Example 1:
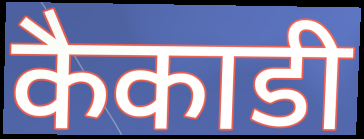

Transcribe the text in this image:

कैकाडी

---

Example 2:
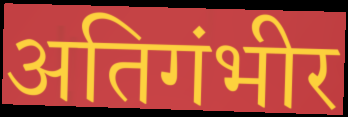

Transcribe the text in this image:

अतिगंभीर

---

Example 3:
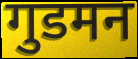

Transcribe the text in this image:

गुडमन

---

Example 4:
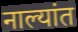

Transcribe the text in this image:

नाल्यांत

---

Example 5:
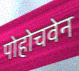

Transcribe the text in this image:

पोहोचवेन